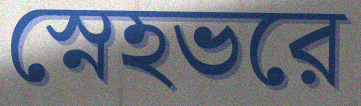
স্নেহভরে